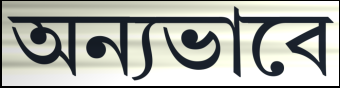
অন্যভাবে